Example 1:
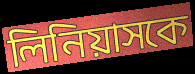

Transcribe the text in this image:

লিনিয়াসকে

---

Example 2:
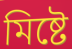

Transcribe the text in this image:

মিষ্টে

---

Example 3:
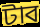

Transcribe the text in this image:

টাব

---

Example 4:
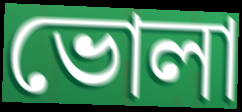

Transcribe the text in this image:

ভোলা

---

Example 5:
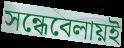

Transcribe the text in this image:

সন্ধেবেলায়ই